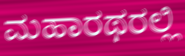
ಮಹಾರಥರಲ್ಲಿ